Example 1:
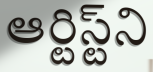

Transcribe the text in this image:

ఆర్టిస్ట్‌ని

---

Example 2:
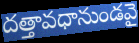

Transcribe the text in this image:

దత్తావధానుండవై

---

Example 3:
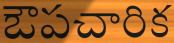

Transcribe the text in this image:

ఔపచారిక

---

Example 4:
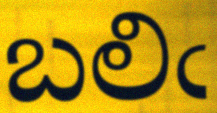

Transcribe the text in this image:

బలిఁ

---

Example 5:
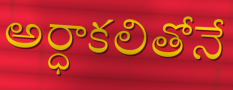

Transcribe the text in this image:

అర్ధాకలితోనే